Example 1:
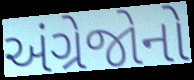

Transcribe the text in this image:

અંગ્રેજોનો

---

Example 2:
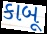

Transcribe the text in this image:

કાબૂ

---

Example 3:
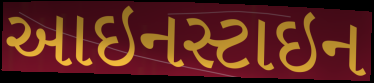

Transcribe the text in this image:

આઇનસ્ટાઇન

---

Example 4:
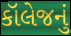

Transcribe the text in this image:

કૉલેજનું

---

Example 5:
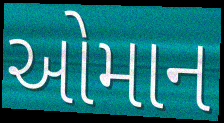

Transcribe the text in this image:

ઓમાન